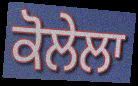
ਕੋਲੇਲਾ